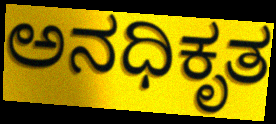
ಅನಧಿಕೃತ